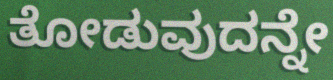
ತೋಡುವುದನ್ನೇ